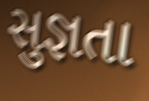
સુજ્ઞતા